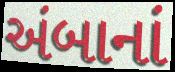
અંબાનાં